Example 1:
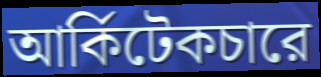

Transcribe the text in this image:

আর্কিটেকচারে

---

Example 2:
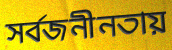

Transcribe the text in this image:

সর্বজনীনতায়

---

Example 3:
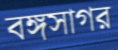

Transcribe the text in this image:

বঙ্গসাগর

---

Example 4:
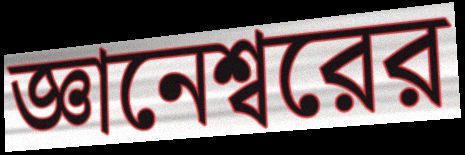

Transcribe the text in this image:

জ্ঞানেশ্বরের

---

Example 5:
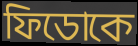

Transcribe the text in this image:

ফিডোকে